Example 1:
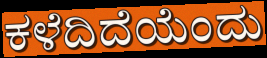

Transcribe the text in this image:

ಕಳೆದಿದೆಯೆಂದು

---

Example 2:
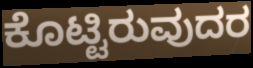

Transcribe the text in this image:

ಕೊಟ್ಟಿರುವುದರ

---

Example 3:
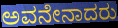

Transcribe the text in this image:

ಅವನೇನಾದರು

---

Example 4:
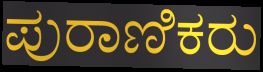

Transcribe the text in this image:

ಪುರಾಣಿಕರು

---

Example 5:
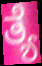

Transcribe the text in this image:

ತ್ಯೆ